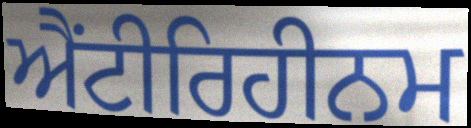
ਐਂਟੀਰਿਹੀਨਮ